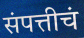
संपत्तीचं